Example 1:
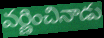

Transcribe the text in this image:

వర్ణించినాడు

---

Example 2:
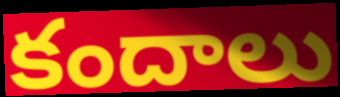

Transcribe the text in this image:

కందాలు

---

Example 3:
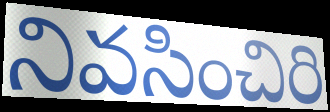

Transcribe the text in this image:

నివసించిరి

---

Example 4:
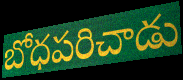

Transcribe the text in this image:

బోధపరిచాడు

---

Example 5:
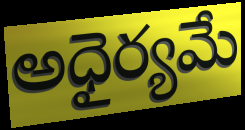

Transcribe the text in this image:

అధైర్యమే